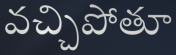
వచ్చిపోతూ